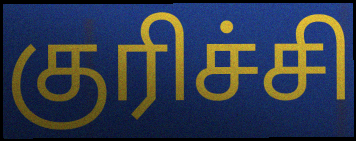
குரிச்சி